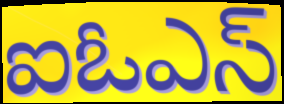
ఐఓఎస్